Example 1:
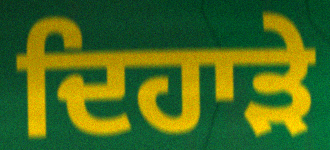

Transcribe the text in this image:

ਦਿਹਾਡ਼ੇ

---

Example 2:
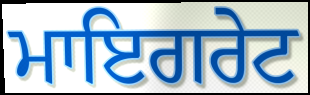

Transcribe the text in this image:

ਮਾਇਗਰੇਟ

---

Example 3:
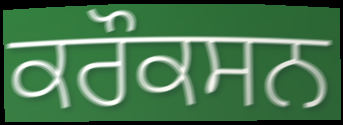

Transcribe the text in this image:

ਕਰੌਕਸਨ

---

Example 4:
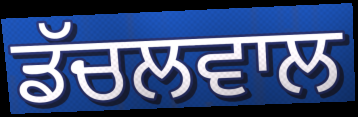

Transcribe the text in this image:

ਡੱਚਲਵਾਲ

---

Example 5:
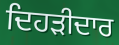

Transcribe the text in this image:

ਦਿਹੜੀਦਾਰ